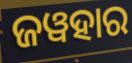
ଜୱହାର